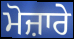
ਮੋਜ਼ਾਰੇ